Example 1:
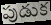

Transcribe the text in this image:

పుడుక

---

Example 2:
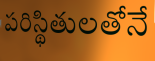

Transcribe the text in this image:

పరిస్థితులతోనే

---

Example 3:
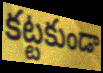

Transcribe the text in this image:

కట్టకుండా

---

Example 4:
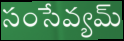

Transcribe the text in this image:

సంసేవ్యమ్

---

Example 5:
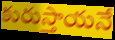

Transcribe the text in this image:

కురుస్తాయనే